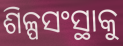
ଶିଳ୍ପସଂସ୍ଥାକୁ